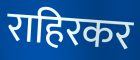
राहिरकर